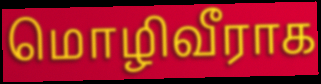
மொழிவீராக